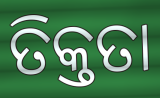
ତିକ୍ତତା